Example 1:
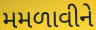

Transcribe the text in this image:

મમળાવીને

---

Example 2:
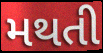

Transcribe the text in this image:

મથતી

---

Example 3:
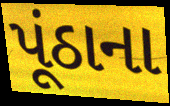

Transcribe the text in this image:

પૂંઠાના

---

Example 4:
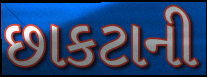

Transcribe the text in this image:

છાકટાની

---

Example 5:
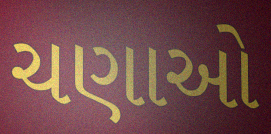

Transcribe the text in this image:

ચણાઓ